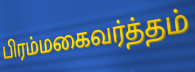
பிரம்மகைவர்த்தம்